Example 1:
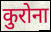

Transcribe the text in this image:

कुरोना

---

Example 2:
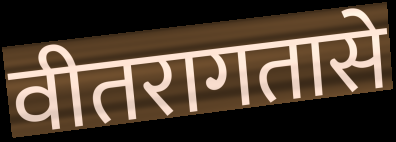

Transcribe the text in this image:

वीतरागतासे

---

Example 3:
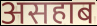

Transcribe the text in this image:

असहाब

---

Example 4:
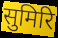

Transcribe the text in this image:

सुमिरि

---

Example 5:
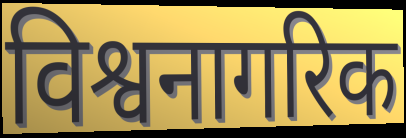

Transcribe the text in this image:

विश्वनागरिक